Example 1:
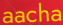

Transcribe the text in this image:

aacha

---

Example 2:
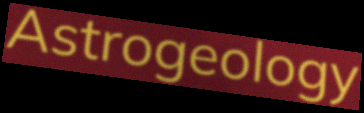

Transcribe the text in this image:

Astrogeology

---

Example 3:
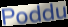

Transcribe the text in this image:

Poddu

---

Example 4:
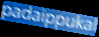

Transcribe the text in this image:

padaippukal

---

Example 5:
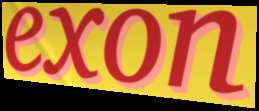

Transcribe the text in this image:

exon